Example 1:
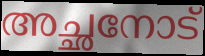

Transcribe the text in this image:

അച്ഛനോട്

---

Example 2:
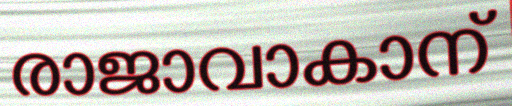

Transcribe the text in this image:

രാജാവാകാന്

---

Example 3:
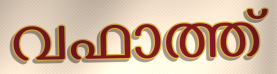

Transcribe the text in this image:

വഫാത്ത്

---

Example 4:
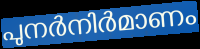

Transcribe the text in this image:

പുനർനിർമാണം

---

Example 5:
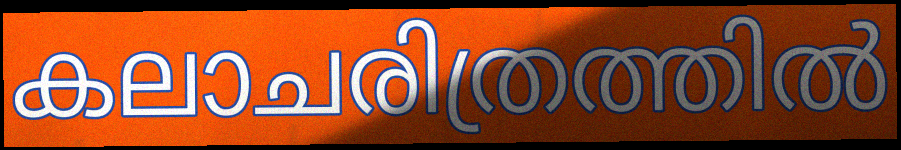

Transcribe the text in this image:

കലാചരിത്രത്തിൽ